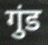
गुंड